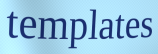
templates